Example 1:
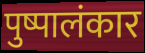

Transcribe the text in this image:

पुष्पालंकार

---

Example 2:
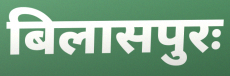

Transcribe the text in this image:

बिलासपुरः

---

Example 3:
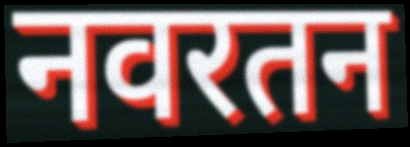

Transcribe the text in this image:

नवरतन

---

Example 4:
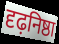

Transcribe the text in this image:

दृढ़निष्ठा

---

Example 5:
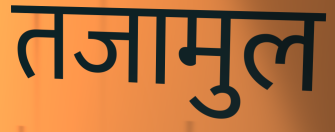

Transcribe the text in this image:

तजामुल